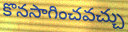
కొనసాగించవచ్చు